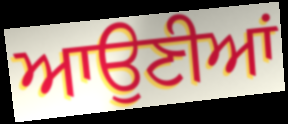
ਆਉਣੀਆਂ